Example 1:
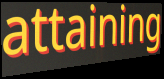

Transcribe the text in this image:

attaining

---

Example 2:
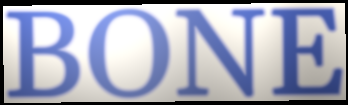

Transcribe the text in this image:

BONE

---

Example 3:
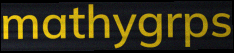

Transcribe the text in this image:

mathygrps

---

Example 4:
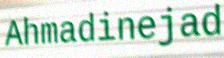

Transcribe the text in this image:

Ahmadinejad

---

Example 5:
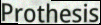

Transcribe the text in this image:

Prothesis